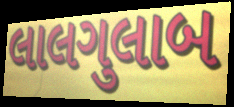
લાલગુલાબ